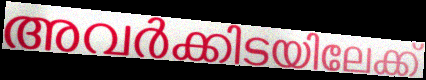
അവർക്കിടയിലേക്ക്